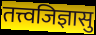
तत्त्वजिज्ञासु